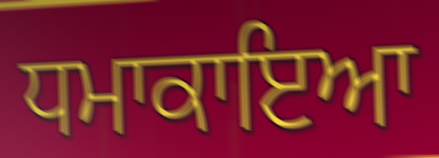
ਧਮਾਕਾਇਆ